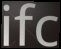
ifc